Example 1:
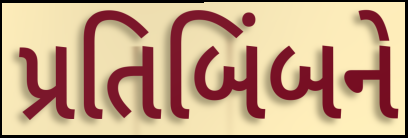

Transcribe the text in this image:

પ્રતિબિંબને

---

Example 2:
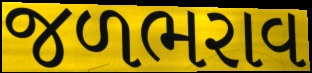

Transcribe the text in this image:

જળભરાવ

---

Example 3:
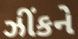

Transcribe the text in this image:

ઝીંકને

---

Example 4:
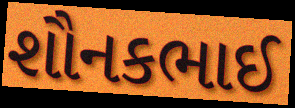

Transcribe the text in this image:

શૌનકભાઈ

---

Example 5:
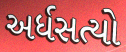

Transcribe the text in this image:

અર્ધસત્યો